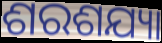
ଶରଶଯ୍ୟା